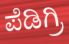
ಪೆಡಿಗ್ರಿ